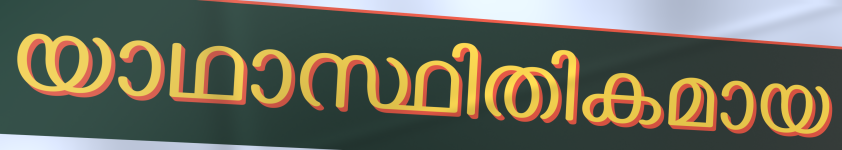
യാഥാസ്ഥിതികമായ